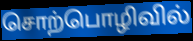
சொற்பொழிவில்